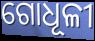
ଗୋଧୂଳୀ